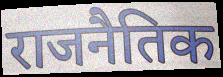
राजनैतिक